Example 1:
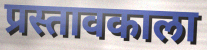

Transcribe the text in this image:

प्रस्तावकाला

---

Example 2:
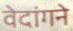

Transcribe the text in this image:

वेदांगने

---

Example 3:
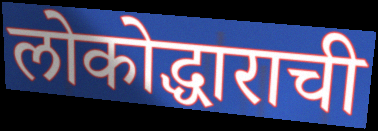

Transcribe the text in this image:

लोकोद्धाराची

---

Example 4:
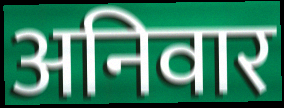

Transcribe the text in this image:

अनिवार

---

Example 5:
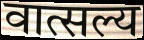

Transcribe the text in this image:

वात्सल्य